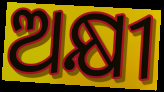
ଅକ୍ଷୀ